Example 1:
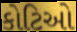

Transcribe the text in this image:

કોટિઓ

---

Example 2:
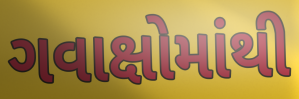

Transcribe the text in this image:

ગવાક્ષોમાંથી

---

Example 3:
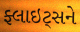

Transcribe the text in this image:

ફ્લાઇટ્સને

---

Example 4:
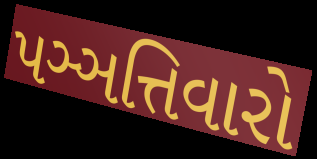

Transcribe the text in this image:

પઞ્ઞત્તિવારો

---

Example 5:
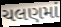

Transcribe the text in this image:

ચલણમાં